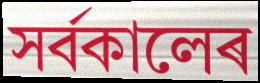
সৰ্বকালেৰ